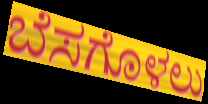
ಬೆಸಗೊಳಲು